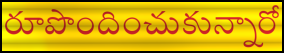
రూపొందించుకున్నారో